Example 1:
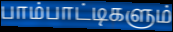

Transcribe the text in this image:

பாம்பாட்டிகளும்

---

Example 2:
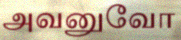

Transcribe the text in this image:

அவனுவோ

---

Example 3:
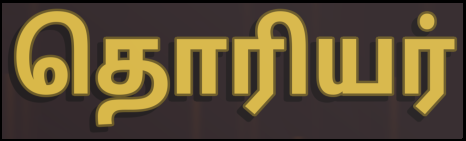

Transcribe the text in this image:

தொரியர்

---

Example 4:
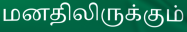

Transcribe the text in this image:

மனதிலிருக்கும்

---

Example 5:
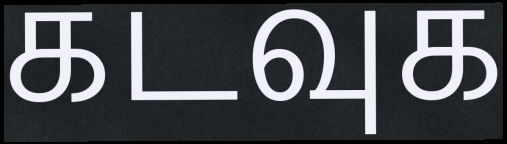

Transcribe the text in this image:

கடவுக